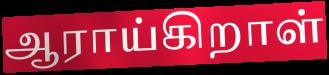
ஆராய்கிறாள்